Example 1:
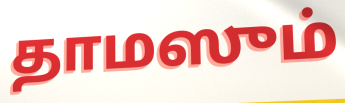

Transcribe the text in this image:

தாமஸும்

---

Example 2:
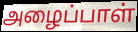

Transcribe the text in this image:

அழைப்பாள்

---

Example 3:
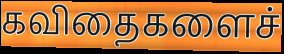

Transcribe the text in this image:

கவிதைகளைச்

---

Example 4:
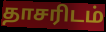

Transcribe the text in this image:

தாசரிடம்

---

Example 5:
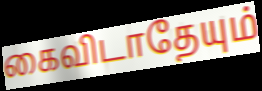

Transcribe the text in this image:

கைவிடாதேயும்